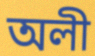
অলী